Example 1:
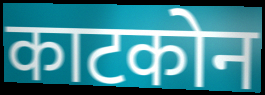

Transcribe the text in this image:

काटकोन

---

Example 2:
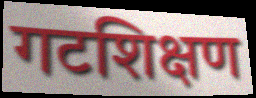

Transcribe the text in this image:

गटशिक्षण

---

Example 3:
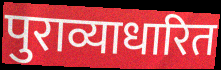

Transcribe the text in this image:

पुराव्याधारित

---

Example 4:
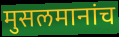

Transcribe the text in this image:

मुसलमानांच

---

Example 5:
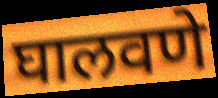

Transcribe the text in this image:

घालवणे